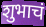
शुभाचं